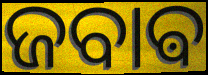
ଜବାଵ